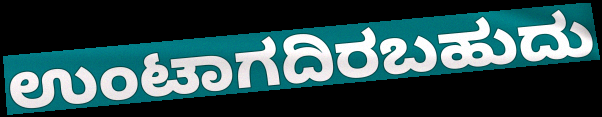
ಉಂಟಾಗದಿರಬಹುದು